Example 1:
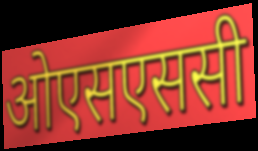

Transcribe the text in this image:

ओएसएससी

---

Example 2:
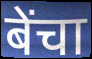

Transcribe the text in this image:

बेंचा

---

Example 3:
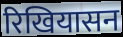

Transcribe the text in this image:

रिखियासन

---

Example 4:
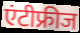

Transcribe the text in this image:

एंटीफ्रीज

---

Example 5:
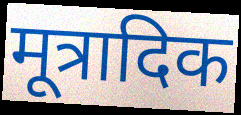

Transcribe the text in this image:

मूत्रादिक